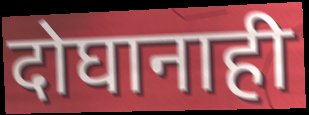
दोघानाही